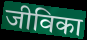
जीविका